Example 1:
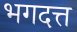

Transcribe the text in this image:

भगदत्त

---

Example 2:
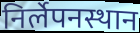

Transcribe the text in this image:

निर्लेपनस्थान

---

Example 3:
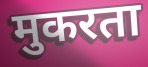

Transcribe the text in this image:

मुकरता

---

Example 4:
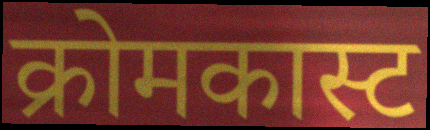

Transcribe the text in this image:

क्रोमकास्ट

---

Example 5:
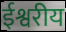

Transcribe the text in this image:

ईश्वरीय